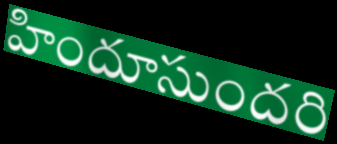
హిందూసుందరి